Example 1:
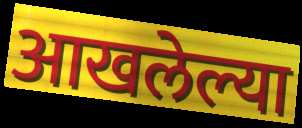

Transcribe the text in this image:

आखलेल्या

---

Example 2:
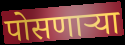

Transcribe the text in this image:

पोसणाऱ्या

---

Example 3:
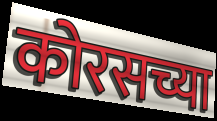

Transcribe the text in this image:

कोरसच्या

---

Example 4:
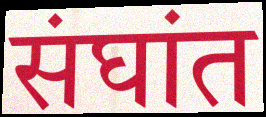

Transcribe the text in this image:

संघांत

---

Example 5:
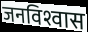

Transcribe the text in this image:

जनविश्वास